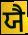
ਯੈ